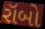
રૉબો